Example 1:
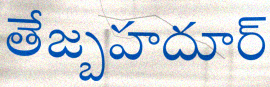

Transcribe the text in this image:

తేజ్బహదూర్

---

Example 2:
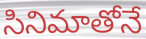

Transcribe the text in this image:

సినిమాతోనే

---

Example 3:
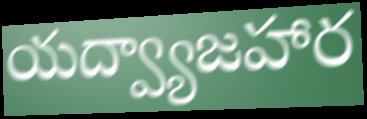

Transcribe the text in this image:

యద్వ్యాజహార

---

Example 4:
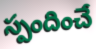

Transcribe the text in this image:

స్పందించే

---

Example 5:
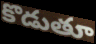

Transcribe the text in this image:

కొడుతూ